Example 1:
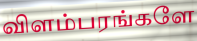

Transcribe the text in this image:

விளம்பரங்களே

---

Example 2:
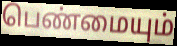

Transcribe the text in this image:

பெண்மையும்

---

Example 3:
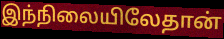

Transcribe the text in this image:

இந்நிலையிலேதான்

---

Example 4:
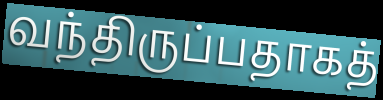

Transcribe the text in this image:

வந்திருப்பதாகத்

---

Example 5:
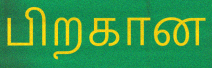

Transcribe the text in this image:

பிறகான